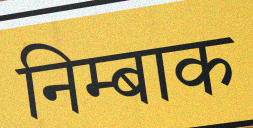
निम्बाक